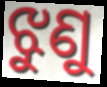
ଝୁଣୁ